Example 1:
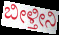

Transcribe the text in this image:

ಬೀಳ್ತೀನಿ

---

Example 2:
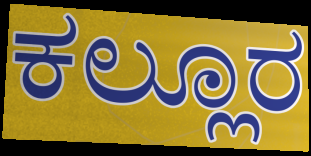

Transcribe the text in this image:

ಕಲ್ಲೂರ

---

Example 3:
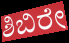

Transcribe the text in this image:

ಶಿಬಿರೇ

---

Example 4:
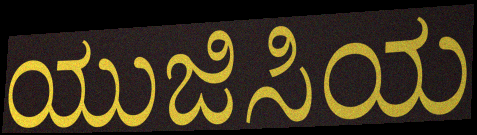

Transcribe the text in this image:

ಯುಜಿಸಿಯ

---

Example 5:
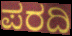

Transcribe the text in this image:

ಪರದಿ